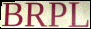
BRPL